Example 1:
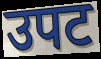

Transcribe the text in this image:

उपट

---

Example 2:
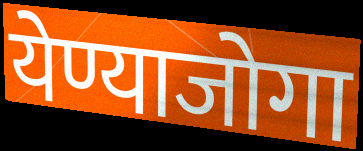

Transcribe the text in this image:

येण्याजोगा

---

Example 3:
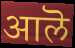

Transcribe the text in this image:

आलॆ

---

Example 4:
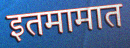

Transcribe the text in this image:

इतमामात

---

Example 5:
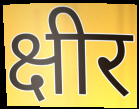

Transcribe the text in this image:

क्षीर